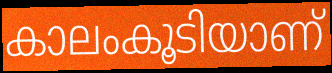
കാലംകൂടിയാണ്